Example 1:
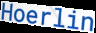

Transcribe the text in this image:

Hoerlin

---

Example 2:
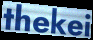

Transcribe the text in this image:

thekei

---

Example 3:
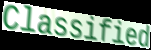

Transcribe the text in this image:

Classified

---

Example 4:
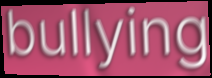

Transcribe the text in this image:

bullying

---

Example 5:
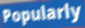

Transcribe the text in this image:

Popularly